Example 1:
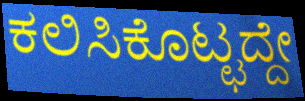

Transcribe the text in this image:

ಕಲಿಸಿಕೊಟ್ಟದ್ದೇ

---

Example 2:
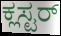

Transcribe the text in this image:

ಕ್ಲಸ್ಟರ್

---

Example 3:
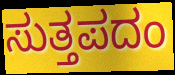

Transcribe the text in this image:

ಸುತ್ತಪದಂ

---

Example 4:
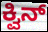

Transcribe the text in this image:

ಕ್ವಿನ್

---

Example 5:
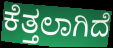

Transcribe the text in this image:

ಕೆತ್ತಲಾಗಿದೆ